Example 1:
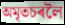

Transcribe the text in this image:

অমৃতচৰলৈ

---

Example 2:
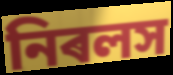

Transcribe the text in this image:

নিৰলস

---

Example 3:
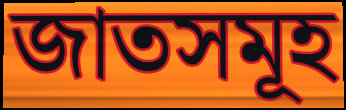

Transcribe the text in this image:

জাতসমূহ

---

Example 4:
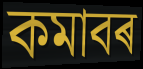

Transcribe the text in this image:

কমাবৰ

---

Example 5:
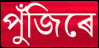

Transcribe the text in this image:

পুঁজিৰে